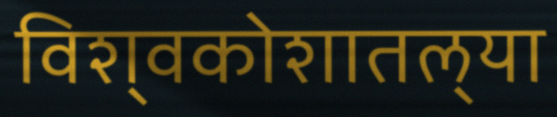
विश्वकोशातल्या